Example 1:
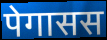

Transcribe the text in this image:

पेगासस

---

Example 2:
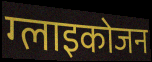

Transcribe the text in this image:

ग्लाइकोजन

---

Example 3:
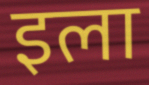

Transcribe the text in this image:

इला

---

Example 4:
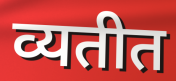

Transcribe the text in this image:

व्यतीत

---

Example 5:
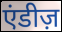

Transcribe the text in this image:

एंडीज़